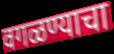
वगळण्याचा